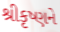
શ્રીકૃષ્ણને